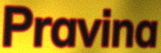
Pravina